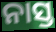
ନାସ୍ତ